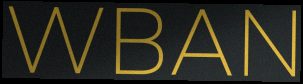
WBAN